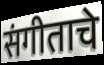
संगीताचे